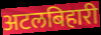
अटलबिहारी